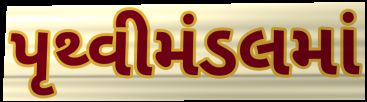
પૃથ્વીમંડલમાં